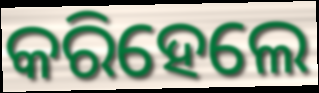
କରିହେଲେ